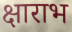
क्षाराभ